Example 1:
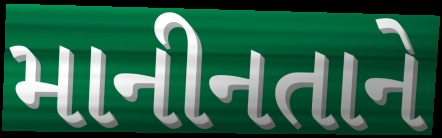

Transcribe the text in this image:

માનીનતાને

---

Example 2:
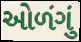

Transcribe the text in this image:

ઓળંગું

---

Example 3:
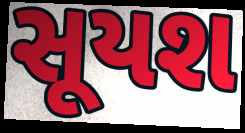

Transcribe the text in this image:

સૂયશ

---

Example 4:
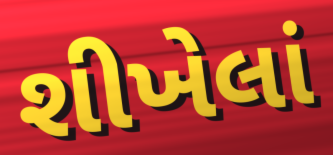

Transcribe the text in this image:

શીખેલાં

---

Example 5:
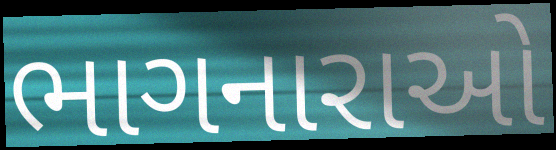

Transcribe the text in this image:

ભાગનારાઓ